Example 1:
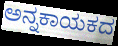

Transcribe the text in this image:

ಅನ್ನಕಾಯಕದ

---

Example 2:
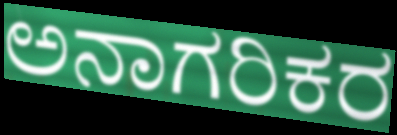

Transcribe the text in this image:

ಅನಾಗರಿಕರ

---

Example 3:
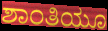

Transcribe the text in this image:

ಶಾಂತಿಯೂ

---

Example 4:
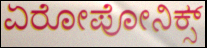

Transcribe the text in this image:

ಏರೋಪೋನಿಕ್ಸ್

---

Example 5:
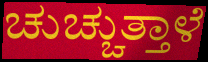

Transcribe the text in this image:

ಚುಚ್ಚುತ್ತಾಳೆ